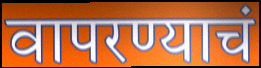
वापरण्याचं